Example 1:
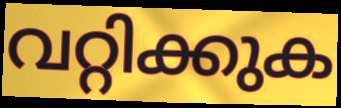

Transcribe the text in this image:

വറ്റിക്കുക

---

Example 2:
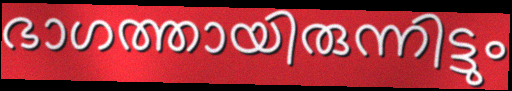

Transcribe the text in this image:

ഭാഗത്തായിരുന്നിട്ടും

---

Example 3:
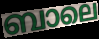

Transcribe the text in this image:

ബാലെ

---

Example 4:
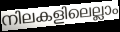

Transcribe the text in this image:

നിലകളിലെല്ലാം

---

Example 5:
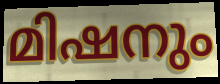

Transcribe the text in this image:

മിഷനും